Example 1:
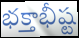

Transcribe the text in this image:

భక్తాభీష్ట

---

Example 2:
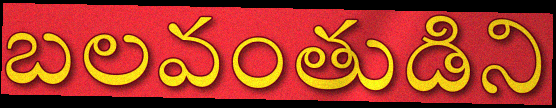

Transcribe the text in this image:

బలవంతుడిని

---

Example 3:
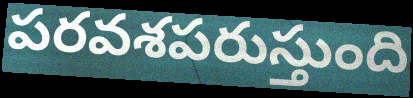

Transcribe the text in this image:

పరవశపరుస్తుంది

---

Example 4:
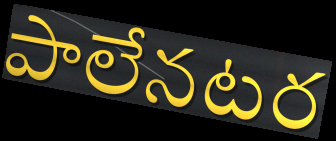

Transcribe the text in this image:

పాలేనటర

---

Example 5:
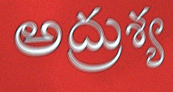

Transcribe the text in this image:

అద్రుశ్య